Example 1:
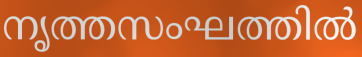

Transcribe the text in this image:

നൃത്തസംഘത്തിൽ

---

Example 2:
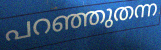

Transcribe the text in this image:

പറഞ്ഞുതന്ന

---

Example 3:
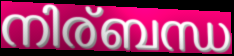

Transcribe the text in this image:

നിര്ബന്ധ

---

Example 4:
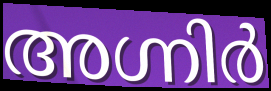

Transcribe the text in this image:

അഗ്നിർ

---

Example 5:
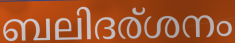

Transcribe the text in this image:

ബലിദര്ശനം